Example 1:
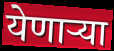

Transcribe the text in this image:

येणाऱ्या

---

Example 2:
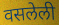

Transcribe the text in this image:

वसलेली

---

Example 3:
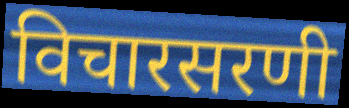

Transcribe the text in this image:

विचारसरणी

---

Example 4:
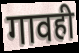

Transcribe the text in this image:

गावही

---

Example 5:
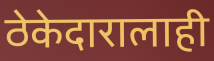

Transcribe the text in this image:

ठेकेदारालाही